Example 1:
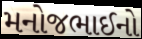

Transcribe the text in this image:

મનોજભાઈનો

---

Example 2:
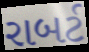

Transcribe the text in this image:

રાબર્ટ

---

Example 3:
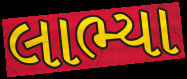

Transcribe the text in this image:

લાભ્યા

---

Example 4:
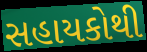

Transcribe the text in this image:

સહાયકોથી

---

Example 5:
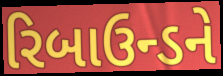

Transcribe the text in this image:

રિબાઉન્ડને